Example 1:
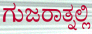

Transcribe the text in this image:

ಗುಜರಾತ್ನಲ್ಲಿ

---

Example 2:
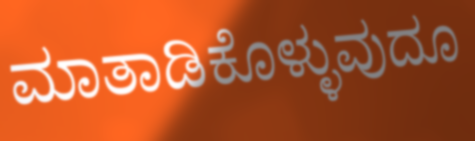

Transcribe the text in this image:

ಮಾತಾಡಿಕೊಳ್ಳುವುದೂ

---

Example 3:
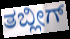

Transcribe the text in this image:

ತಬ್ಲೀಗ್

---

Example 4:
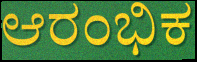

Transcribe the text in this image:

ಆರಂಭಿಕ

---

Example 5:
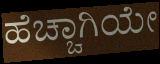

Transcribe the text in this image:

ಹೆಚ್ಚಾಗಿಯೇ